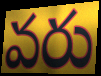
వరు